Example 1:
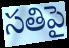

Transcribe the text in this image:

సతిపై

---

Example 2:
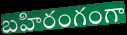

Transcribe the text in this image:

బహిరంగంగా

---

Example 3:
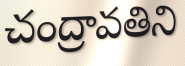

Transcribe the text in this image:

చంద్రావతిని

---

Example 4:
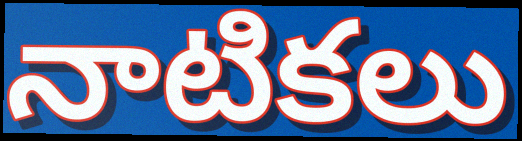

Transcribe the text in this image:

నాటికలు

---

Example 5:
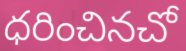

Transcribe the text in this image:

ధరించినచో